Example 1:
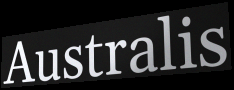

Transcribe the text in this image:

Australis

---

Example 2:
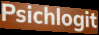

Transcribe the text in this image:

Psichlogit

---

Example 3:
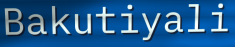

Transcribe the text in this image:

Bakutiyali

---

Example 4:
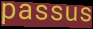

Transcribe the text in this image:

passus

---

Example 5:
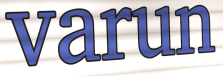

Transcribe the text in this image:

varun